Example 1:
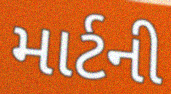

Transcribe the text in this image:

માર્ટની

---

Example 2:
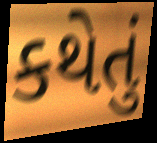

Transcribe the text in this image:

કથેતું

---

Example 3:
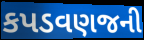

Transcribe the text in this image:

કપડવણજની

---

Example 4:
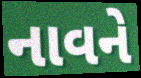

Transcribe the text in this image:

નાવને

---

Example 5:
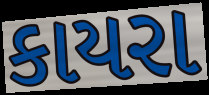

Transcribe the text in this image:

કાયરા